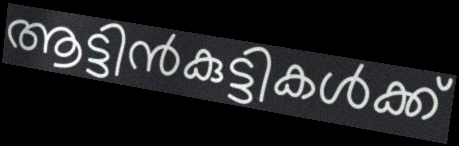
ആട്ടിൻകുട്ടികൾക്ക്